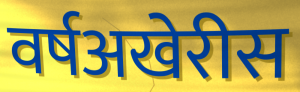
वर्षअखेरीस